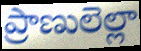
ప్రాణులెల్లా